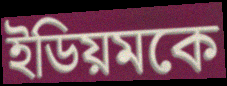
ইডিয়মকে